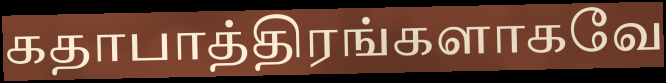
கதாபாத்திரங்களாகவே